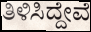
ತಿಳಿಸಿದ್ದೇವೆ